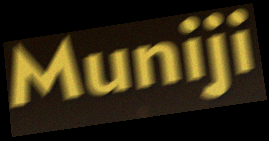
Muniji